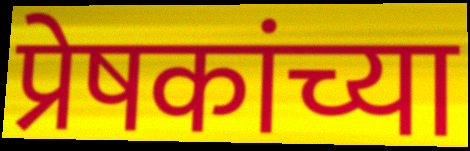
प्रेषकांच्या